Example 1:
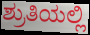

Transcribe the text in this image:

ಶ್ರುತಿಯಲ್ಲಿ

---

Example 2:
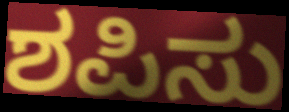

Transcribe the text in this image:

ಶಪಿಸು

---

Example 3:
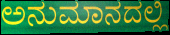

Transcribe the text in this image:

ಅನುಮಾನದಲ್ಲಿ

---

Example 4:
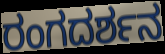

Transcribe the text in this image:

ರಂಗದರ್ಶನ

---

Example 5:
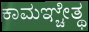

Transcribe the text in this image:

ಕಾಮಞ್ಚೇತ್ಥ